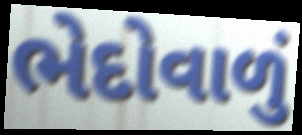
ભેદોવાળું